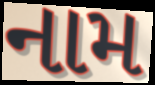
નામ